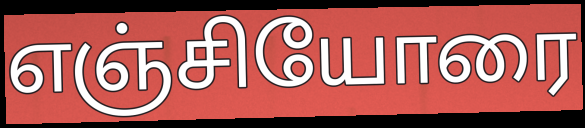
எஞ்சியோரை